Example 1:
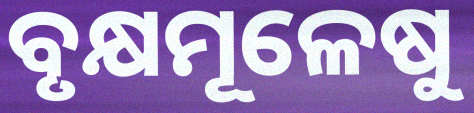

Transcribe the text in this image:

ବୃକ୍ଷମୂଳେଷୁ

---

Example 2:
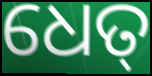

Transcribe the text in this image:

ଧେତ୍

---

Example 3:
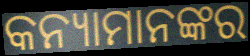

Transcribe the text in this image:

କନ୍ୟାମାନଙ୍କର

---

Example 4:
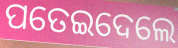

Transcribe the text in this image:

ପତେଇଦେଲେ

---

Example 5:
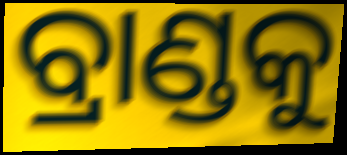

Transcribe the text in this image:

ବ୍ରାଣ୍ଡକୁ